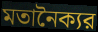
মতানৈক্যর